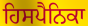
ਹਿਸਪੈਨਿਕਾ